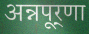
अन्नपूर्णा